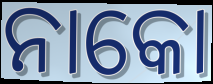
ନାକୋ